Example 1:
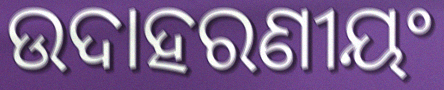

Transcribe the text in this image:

ଉଦାହରଣୀୟଂ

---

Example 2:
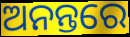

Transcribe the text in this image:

ଅନନ୍ତରେ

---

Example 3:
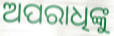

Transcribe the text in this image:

ଅପରାଧିଙ୍କୁ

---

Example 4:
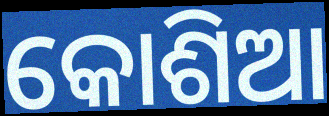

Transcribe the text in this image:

କୋଶିଆ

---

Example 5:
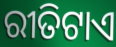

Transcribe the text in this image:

ରୀତିଟାଏ